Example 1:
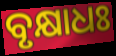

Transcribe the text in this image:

ବୃକ୍ଷାଧଃ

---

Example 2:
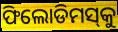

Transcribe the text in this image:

ଫିଲୋଡିମସ୍‌କୁ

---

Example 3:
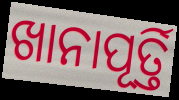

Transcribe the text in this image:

ଖାନାପୂର୍ତ୍ତି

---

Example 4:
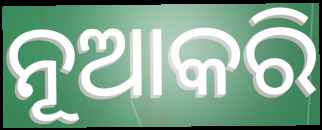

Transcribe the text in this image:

ନୂଆକରି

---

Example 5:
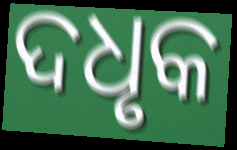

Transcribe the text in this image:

ଦଧୃକ